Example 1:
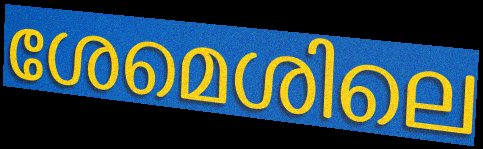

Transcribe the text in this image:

ശേമെശിലെ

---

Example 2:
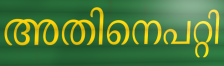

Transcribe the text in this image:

അതിനെപറ്റി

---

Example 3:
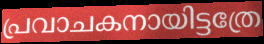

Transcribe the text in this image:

പ്രവാചകനായിട്ടത്രേ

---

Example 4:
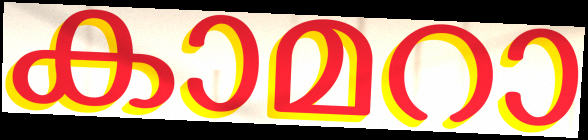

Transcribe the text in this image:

കാമറാ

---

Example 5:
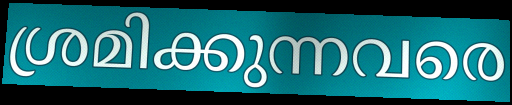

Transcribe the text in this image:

ശ്രമിക്കുന്നവരെ